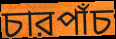
চারপাঁচ